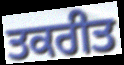
ਤਕਰੀਤ